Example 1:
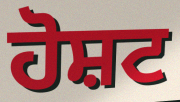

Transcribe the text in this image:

ਹੋਸ਼ਟ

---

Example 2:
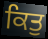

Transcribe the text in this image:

ਕਿਤੁ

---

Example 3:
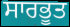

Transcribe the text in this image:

ਸਾਰਭੂਤ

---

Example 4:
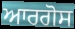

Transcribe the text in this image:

ਆਰਗੋਸ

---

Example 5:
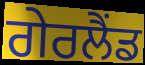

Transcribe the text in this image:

ਗੇਰਲੈਂਡ